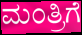
ಮಂತ್ರಿಗೆ